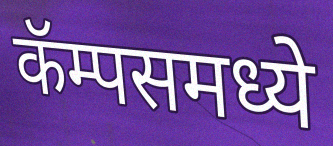
कॅम्पसमध्ये